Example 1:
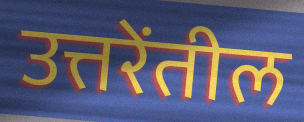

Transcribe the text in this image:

उत्तरेंतील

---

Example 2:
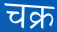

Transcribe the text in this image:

चक्र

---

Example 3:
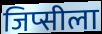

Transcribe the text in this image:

जिप्सीला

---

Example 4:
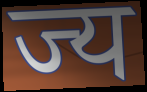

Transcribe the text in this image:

ज्य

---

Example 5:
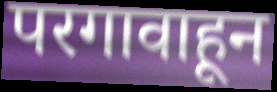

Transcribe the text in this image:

परगावाहून